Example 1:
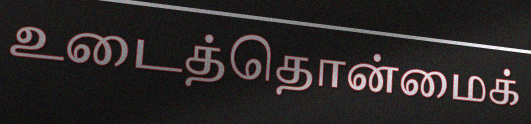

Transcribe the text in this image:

உடைத்தொன்மைக்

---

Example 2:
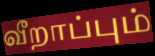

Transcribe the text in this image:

வீறாப்பும்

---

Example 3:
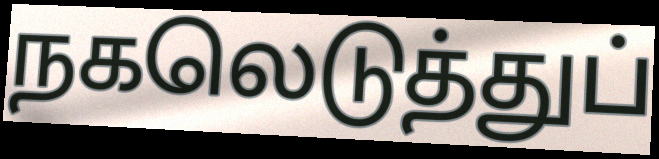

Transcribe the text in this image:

நகலெடுத்துப்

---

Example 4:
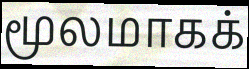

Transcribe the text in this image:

மூலமாகக்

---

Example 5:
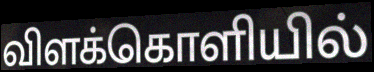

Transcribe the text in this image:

விளக்கொளியில்